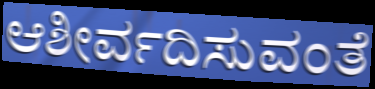
ಆಶೀರ್ವದಿಸುವಂತೆ